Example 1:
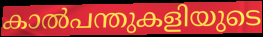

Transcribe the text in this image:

കാൽപന്തുകളിയുടെ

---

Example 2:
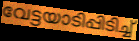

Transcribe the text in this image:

വേട്ടയാടിപ്പിടിച്ച്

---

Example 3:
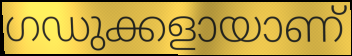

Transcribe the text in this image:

ഗഡുക്കളായാണ്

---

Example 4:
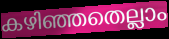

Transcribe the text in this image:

കഴിഞ്ഞതെല്ലാം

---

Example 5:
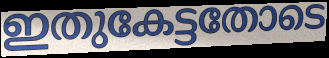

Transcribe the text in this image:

ഇതുകേട്ടതോടെ